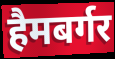
हैमबर्गर